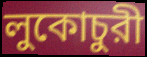
লুকোচুরী